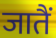
जातैं